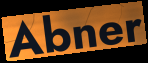
Abner